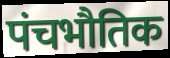
पंचभौतिक